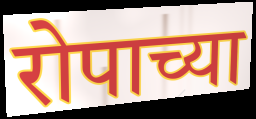
रोपाच्या